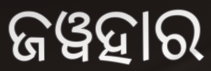
ଜୱହାର